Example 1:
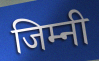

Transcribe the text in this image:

जिम्नी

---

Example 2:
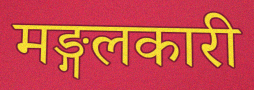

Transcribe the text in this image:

मङ्गलकारी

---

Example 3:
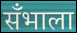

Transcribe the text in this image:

सँभाला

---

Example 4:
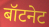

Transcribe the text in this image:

बॉटनेट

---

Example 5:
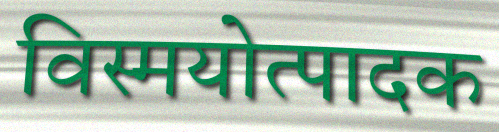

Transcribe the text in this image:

विस्मयोत्पादक